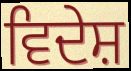
ਵਿਦੇਸ਼